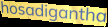
hosadigantha